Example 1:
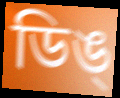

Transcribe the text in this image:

ডিঙ্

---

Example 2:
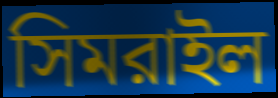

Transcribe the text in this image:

সিমরাইল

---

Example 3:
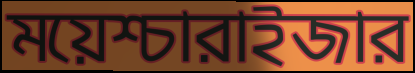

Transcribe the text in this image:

ময়েশ্চারাইজার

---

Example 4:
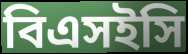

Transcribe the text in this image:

বিএসইসি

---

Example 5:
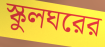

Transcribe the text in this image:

স্কুলঘরের